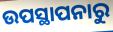
ଉପସ୍ଥାପନାରୁ